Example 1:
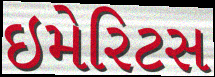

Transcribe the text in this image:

ઇમેરિટસ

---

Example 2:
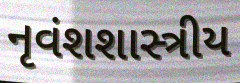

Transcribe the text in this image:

નૃવંશશાસ્ત્રીય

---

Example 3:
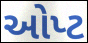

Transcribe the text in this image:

ઓપ્ટ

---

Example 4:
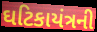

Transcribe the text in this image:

ઘટિકાયંત્રની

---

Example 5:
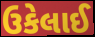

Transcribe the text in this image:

ઉકેલાઈ